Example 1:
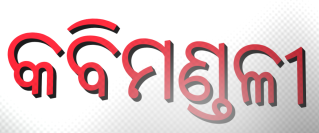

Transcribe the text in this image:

କବିମଣ୍ଡଳୀ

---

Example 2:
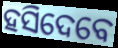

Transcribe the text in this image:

ହସିଦେବେ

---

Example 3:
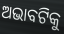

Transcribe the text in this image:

ଅଭାବଟିକୁ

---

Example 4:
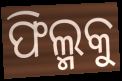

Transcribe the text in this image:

ଫିଲ୍ମକୁ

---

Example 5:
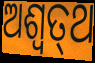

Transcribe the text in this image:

ଅଶ୍ଵତ୍‌ଥ